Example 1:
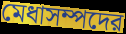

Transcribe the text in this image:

মেধাসম্পদের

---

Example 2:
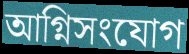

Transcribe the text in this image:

আগ্নিসংযোগ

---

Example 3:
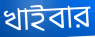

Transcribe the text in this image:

খাইবার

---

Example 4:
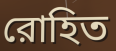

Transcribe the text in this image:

রোহিত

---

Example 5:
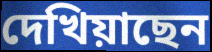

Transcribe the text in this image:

দেখিয়াছেন